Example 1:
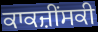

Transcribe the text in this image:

ਕਾਕਜ਼ੀੰਸਕੀ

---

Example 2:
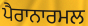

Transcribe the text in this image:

ਪੈਰਾਨਾਰਮਲ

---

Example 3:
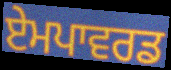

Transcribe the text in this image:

ਏਮਪਾਵਰਡ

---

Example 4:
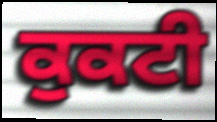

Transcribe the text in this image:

ਕੁਕਟੀ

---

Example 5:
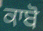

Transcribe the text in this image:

ਕਾਬੋ